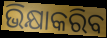
ଭିକ୍ଷାକରିବ